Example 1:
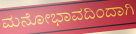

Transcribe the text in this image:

ಮನೋಭಾವದಿಂದಾಗಿ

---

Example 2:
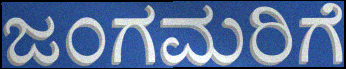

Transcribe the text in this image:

ಜಂಗಮರಿಗೆ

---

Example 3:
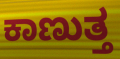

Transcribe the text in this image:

ಕಾಣುತ್ತ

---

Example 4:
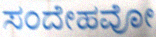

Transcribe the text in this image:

ಸಂದೇಹವೋ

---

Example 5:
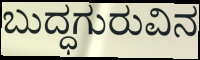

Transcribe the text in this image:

ಬುದ್ಧಗುರುವಿನ